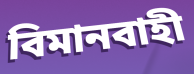
বিমানবাহী